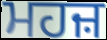
ਮਹਜ਼